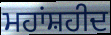
ਮਹਾਂਸ਼ਹੀਦ